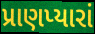
પ્રાણપ્યારાં